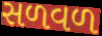
સળવળ